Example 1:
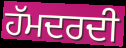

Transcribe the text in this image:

ਹੱਮਦਰਦੀ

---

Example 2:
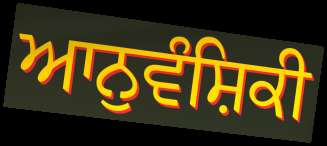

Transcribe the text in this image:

ਆਨੁਵੰਸ਼ਿਕੀ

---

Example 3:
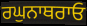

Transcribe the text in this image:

ਰਘੁਨਾਥਰਾਓ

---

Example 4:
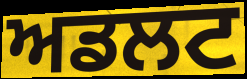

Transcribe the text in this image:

ਅਡਲਟ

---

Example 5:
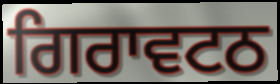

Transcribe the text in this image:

ਗਿਰਾਵਟਠ